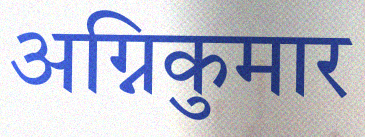
अग्निकुमार